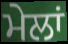
ਮੇਲਾਂ